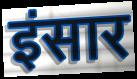
इंसार